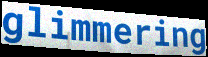
glimmering